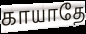
காயாதே